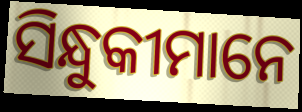
ସିନ୍ଧୁକୀମାନେ